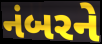
નંબરને